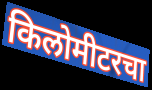
किलोमीटरचा